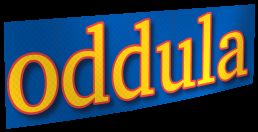
oddula